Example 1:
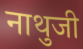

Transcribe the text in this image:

नाथुजी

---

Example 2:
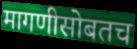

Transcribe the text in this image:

मागणीसोबतच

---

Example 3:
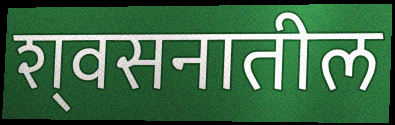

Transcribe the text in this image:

श्वसनातील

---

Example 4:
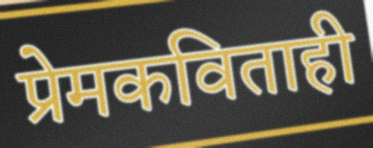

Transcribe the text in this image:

प्रेमकविताही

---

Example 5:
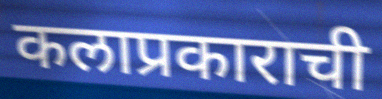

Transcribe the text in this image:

कलाप्रकाराची